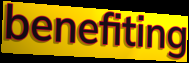
benefiting